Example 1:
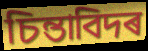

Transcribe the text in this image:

চিন্তাবিদৰ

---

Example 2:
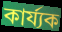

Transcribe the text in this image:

কাৰ্য্যক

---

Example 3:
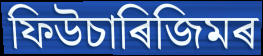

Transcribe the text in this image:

ফিউচাৰিজিমৰ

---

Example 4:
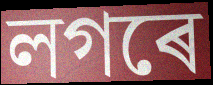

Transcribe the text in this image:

লগৰে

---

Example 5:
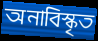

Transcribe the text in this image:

অনাবিস্কৃত